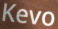
Kevo